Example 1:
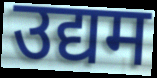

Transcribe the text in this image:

उद्यम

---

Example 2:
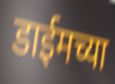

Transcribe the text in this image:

डाईमच्या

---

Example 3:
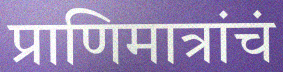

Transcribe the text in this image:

प्राणिमात्रांचं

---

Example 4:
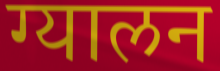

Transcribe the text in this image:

ग्यालन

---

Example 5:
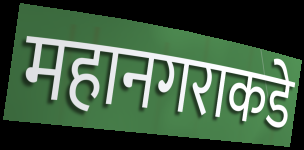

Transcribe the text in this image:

महानगराकडे